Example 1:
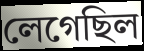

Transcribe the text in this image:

লেগেছিল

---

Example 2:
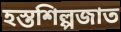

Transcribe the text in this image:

হস্তশিল্পজাত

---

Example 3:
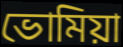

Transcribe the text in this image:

ভোমিয়া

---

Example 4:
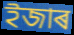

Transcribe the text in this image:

ইজাৰ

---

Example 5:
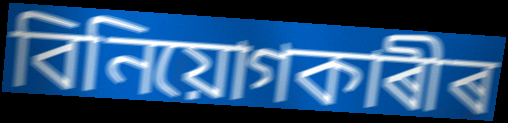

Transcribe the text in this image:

বিনিয়োগকাৰীৰ